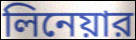
লিনেয়ার